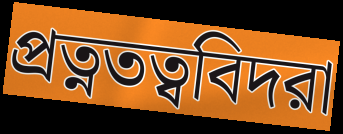
প্রত্নতত্ববিদরা